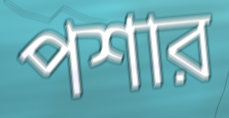
পশার